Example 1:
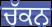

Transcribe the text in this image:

ਚੱਕਨ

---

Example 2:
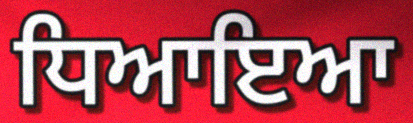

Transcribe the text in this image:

ਧਿਆਇਆ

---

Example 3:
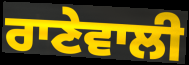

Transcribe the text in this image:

ਰਾਣੇਵਾਲੀ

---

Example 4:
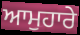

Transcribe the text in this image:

ਆਮੁਹਾਰੇ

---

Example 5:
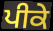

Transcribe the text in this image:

ਪੀਕੇ